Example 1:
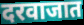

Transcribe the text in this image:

दरवाजात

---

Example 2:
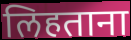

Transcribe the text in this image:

लिहताना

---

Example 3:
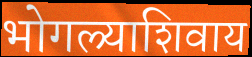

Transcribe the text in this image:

भोगल्याशिवाय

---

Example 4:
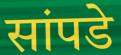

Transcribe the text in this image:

सांपडे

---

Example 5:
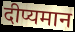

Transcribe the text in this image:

दीप्यमान